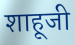
शाहूजी